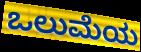
ಒಲುಮೆಯ